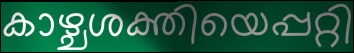
കാഴ്ചശക്തിയെപ്പറ്റി